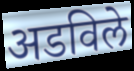
अडविले